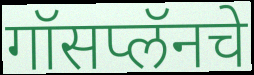
गॉसप्लॅनचे